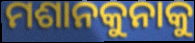
ମଶାନକୁନାକୁ